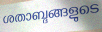
ശതാബ്ദങ്ങളുടെ